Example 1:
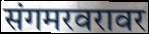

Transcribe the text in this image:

संगमरवरावर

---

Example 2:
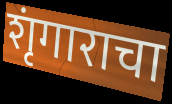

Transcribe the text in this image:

शृंगाराचा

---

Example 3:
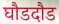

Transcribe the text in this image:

घौडदौड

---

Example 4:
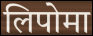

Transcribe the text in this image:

लिपोमा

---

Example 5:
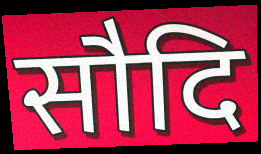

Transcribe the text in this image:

सौदि